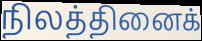
நிலத்தினைக்